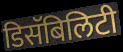
डिसॅबिलिटी